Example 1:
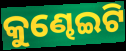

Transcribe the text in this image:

କୁଣ୍ଢେଇଟି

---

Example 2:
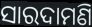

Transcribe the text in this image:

ସାରଦାମଣି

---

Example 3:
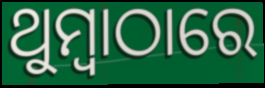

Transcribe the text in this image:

ଥୁମ୍ବାଠାରେ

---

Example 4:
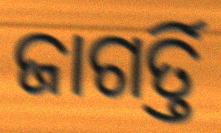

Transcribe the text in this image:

ଜାଗର୍ତ୍ତି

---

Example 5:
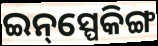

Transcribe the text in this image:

ଇନ୍‌ସ୍ପେକିଙ୍ଗ